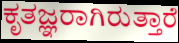
ಕೃತಜ್ಞರಾಗಿರುತ್ತಾರೆ